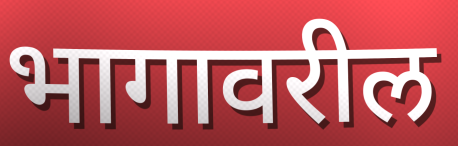
भागावरील